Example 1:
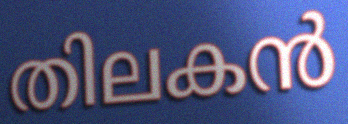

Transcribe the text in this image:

തിലകൻ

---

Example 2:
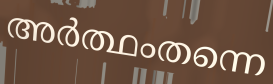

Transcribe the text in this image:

അർത്ഥംതന്നെ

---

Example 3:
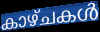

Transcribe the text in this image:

കാഴ്‌ചകൾ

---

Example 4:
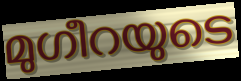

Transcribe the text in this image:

മുഗീറയുടെ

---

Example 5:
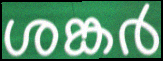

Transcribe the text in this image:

ശങ്കർ